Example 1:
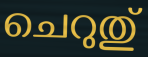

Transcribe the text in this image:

ചെറുതു്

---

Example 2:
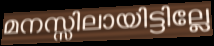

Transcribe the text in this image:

മനസ്സിലായിട്ടില്ലേ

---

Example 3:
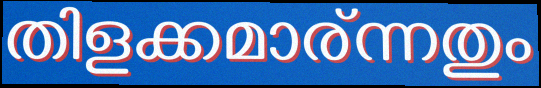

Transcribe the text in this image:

തിളക്കമാര്ന്നതും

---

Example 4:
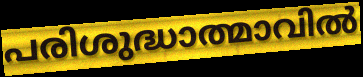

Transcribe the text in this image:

പരിശുദ്ധാത്മാവിൽ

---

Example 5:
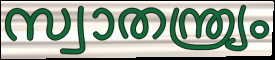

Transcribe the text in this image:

സ്വാതന്ത്ര്യം